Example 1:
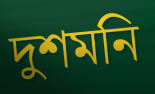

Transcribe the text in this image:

দুশমনি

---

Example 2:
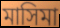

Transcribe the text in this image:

মাসিমা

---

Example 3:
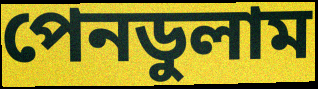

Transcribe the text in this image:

পেনডুলাম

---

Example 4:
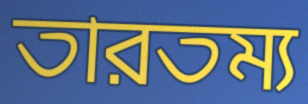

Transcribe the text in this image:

তারতম্য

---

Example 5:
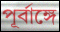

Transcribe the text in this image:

পূর্বাঙ্গে